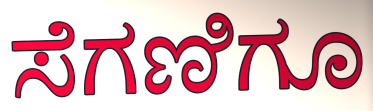
ಸೆಗಣಿಗೂ